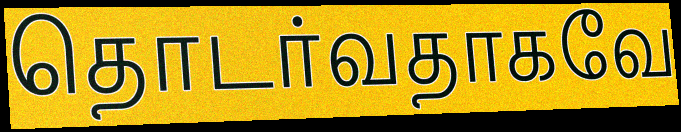
தொடர்வதாகவே